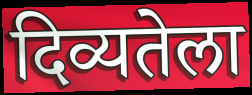
दिव्यतेला